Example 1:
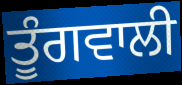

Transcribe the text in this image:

ਤੂੰਗਵਾਲੀ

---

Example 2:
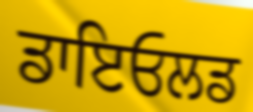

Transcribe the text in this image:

ਡਾਇਓਲਡ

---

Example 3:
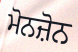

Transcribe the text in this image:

ਮੋਨਜ਼ੋਨ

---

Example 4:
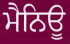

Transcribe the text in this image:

ਮੈਨਿਊ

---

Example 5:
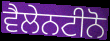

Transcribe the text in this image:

ਵੈਲੇਨਟੀਨੋ